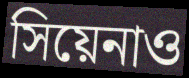
সিয়েনাও